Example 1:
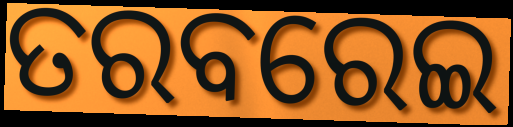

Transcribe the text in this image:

ତରବରେଇ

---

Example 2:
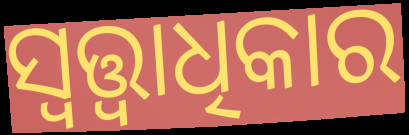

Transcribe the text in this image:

ସ୍ୱତ୍ତ୍ୱାଧିକାର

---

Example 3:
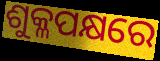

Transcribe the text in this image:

ଶୁକ୍ଳପକ୍ଷରେ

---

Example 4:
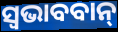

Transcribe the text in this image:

ସ୍ଵଭାବବାନ୍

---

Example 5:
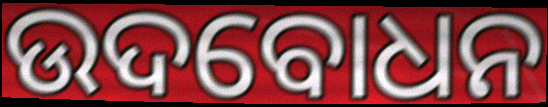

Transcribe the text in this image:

ଉଦବୋଧନ